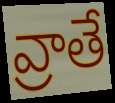
వ్రాతే